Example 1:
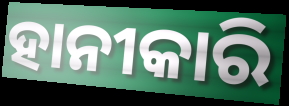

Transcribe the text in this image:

ହାନୀକାରି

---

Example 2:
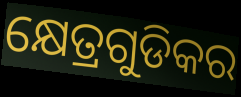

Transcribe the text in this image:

କ୍ଷେତ୍ରଗୁଡିକର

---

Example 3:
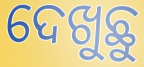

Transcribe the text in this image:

ଦେଖୁଛୁ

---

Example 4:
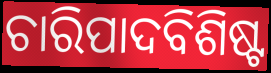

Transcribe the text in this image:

ଚାରିପାଦବିଶିଷ୍ଟ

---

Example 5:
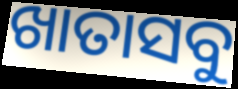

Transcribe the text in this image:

ଖାତାସବୁ